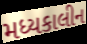
મધ્યકાલીન